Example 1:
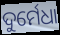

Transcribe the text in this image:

ଦୁର୍ମେଧା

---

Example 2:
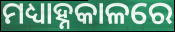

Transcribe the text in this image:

ମଧ୍ୟାହ୍ନକାଳରେ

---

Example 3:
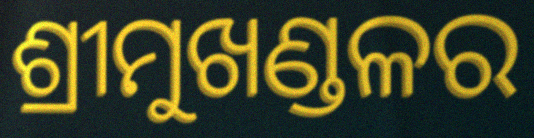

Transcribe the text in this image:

ଶ୍ରୀମୁଖଣ୍ଡଳର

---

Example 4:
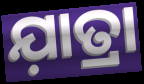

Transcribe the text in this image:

ଯ଼ାତ୍ରା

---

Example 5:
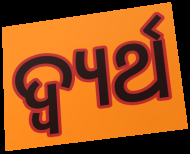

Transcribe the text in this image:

ଦ୍ୱ୍ୟର୍ଥ